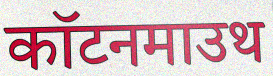
कॉटनमाउथ